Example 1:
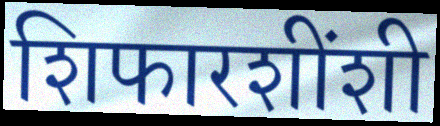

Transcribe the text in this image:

शिफारशींशी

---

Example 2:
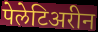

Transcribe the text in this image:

पेलेटिअरीन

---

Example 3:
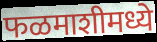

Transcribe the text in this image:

फळमाशीमध्ये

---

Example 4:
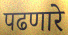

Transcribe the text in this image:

पढणारे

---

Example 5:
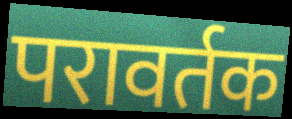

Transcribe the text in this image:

परावर्तक